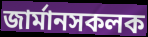
জাৰ্মানসকলক